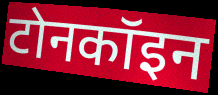
टोनकॉइन